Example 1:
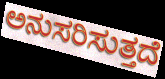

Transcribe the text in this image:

ಅನುಸರಿಸುತ್ತದೆ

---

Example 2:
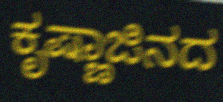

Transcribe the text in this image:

ಕೃಷ್ಣಾಜಿನದ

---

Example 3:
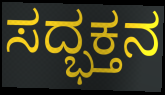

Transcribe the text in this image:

ಸದ್ಭಕ್ತನ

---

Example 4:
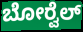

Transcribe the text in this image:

ಬೋರ್‍ವೆಲ್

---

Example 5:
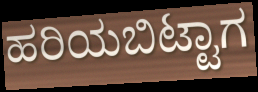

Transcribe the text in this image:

ಹರಿಯಬಿಟ್ಟಾಗ